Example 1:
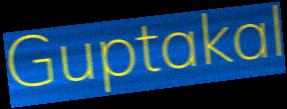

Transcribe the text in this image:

Guptakal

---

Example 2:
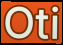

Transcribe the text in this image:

Oti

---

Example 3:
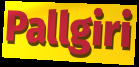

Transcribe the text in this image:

Pallgiri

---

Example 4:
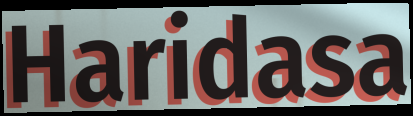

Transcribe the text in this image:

Haridasa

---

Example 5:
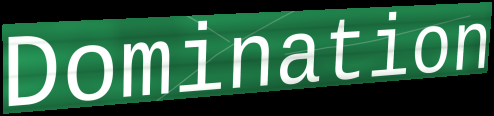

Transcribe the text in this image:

Domination